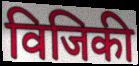
विजिकी